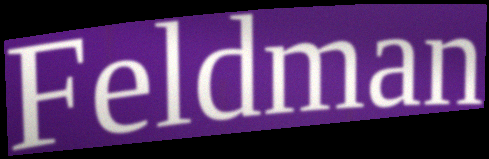
Feldman